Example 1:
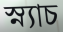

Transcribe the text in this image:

স্ন্যাচ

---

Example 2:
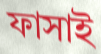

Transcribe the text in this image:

ফাসাই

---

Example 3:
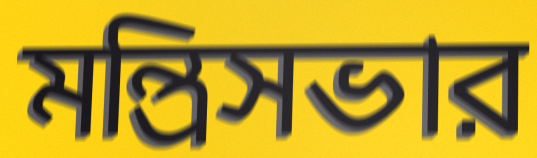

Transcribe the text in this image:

মন্ত্রিসভার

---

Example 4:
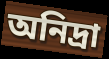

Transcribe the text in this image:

অনিদ্রা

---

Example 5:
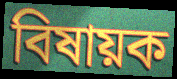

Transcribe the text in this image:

বিষায়ক